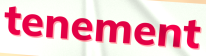
tenement